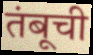
तंबूची